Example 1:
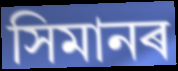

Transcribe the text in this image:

সিমানৰ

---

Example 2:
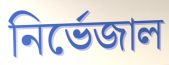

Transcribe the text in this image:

নিৰ্ভেজাল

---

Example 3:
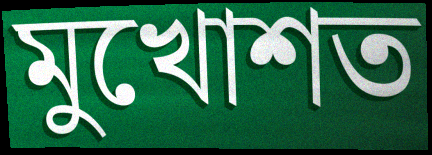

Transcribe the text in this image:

মুখোশত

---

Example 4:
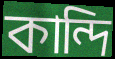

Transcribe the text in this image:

কান্দি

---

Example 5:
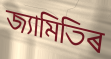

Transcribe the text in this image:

জ্যামিতিৰ